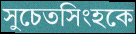
সুচেতসিংহকে